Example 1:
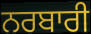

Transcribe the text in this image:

ਨਰਬਾਰੀ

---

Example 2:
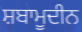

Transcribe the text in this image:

ਸ਼ਬਾਮੂਦੀਨ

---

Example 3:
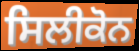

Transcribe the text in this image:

ਸਿਲੀਕੋਨ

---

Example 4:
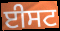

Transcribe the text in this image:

ਈਸਟ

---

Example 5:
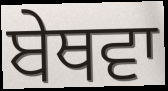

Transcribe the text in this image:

ਬੇਥਵਾ